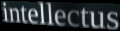
intellectus